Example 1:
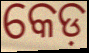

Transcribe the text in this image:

କେଡ଼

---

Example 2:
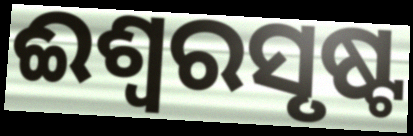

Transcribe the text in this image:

ଈଶ୍ୱରସୃଷ୍ଟ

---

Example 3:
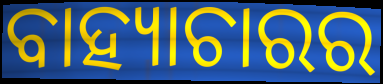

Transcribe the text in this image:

ବାହ୍ୟାଚାରର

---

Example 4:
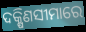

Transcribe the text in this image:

ଦକ୍ଷିଣସୀମାରେ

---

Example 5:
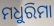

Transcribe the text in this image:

ମଧୁରିମା